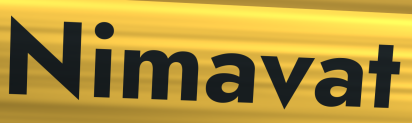
Nimavat